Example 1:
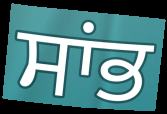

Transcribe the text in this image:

ਸਾਂਭ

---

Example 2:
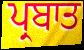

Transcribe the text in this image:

ਪ੍ਰਬਾਤ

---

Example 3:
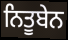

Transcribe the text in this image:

ਨਿਤੂਬੇਨ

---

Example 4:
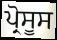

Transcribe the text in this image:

ਪ੍ਰੋਸੂਸ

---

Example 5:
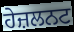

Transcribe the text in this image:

ਹੇਜ਼ਲਨਟ